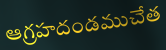
ఆగ్రహదండముచేత